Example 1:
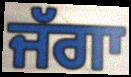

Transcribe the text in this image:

ਜੱਗਾ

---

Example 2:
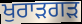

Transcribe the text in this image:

ਖੁਰਾੜਗੜ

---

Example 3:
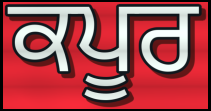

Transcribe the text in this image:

ਕਪੂਰ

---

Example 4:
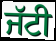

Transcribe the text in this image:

ਜੱਟੀ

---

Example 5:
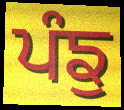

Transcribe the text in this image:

ਪੰਙੁ